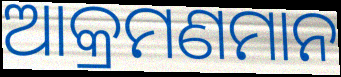
ଆକ୍ରମଣମାନ